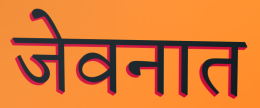
जेवनात